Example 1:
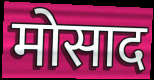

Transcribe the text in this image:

मोसाद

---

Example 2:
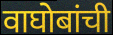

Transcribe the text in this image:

वाघोबांची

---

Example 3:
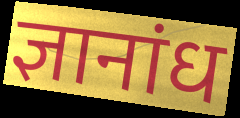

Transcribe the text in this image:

ज्ञानांध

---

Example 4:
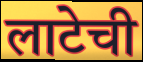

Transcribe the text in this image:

लाटेची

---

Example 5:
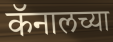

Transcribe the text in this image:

कॅनालच्या